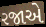
રજાએ